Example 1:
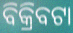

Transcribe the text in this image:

ବିକ୍ରିବଟା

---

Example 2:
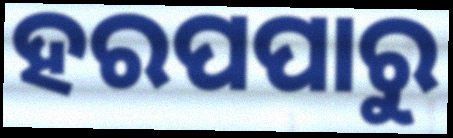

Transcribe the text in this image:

ହରପପାରୁ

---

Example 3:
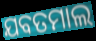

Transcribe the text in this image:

ଯବତମାଲ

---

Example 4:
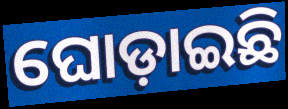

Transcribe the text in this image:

ଘୋଡ଼ାଇଛି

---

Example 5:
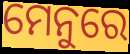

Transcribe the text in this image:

ମେନୁରେ